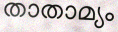
താതാമ്യം